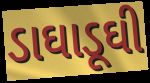
ડાઘાડૂઘી